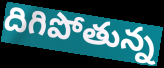
దిగిపోతున్న